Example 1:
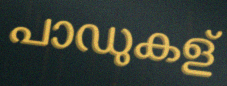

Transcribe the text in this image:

പാഡുകള്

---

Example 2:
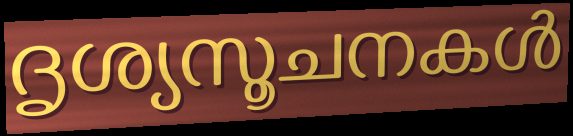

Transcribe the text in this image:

ദൃശ്യസൂചനകൾ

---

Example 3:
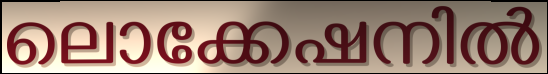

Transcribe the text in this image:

ലൊക്കേഷനിൽ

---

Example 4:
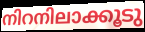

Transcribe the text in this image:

നിറനിലാക്കൂടു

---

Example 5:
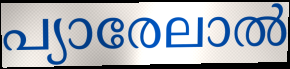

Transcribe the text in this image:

പ്യാരേലാൽ